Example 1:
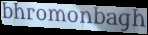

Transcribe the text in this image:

bhromonbagh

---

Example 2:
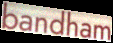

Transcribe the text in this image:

bandham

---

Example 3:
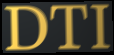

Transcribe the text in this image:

DTI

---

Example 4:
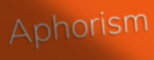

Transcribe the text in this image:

Aphorism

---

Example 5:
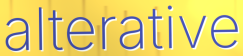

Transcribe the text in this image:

alterative